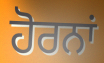
ਹੋਰਨਾਂ